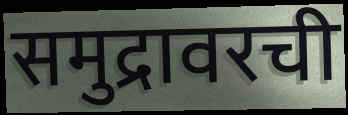
समुद्रावरची